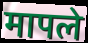
मापले